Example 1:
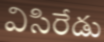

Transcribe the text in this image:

విసిరేడు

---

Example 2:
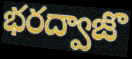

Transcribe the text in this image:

భరద్వాజొ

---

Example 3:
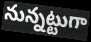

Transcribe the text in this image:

నున్నట్టుగా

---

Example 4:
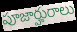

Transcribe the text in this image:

పూజార్హురాలు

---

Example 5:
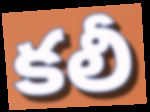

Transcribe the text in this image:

కలీ